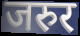
जरुर